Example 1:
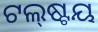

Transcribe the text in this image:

ଟଲ୍‌ଷ୍ଟୟ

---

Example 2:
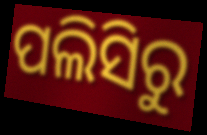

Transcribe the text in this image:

ପଲିସିରୁ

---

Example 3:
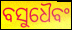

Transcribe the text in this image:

ବସୁଧୈବଂ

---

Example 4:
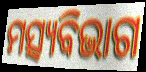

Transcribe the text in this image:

ମତ୍ସ୍ୟବିଭାଗ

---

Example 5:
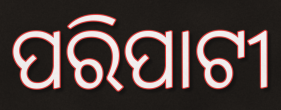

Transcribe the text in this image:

ପରିପାଟୀ